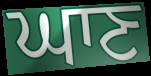
ਘਾਣ